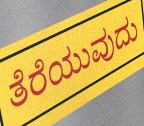
ತೆರೆಯುವುದು